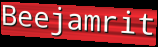
Beejamrit